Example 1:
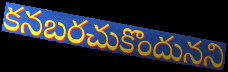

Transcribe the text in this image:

కనబరచుకొందునని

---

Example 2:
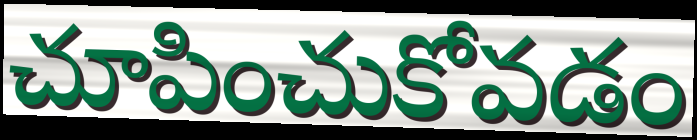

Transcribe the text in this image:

చూపించుకోవడం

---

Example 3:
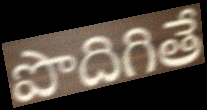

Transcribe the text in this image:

పొదిగితే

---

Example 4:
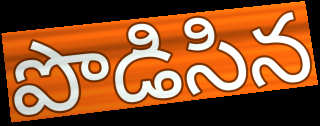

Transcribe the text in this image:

పొడిసిన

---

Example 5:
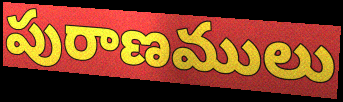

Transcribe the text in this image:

పురాణములు